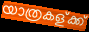
യാത്രകള്ക്ക്